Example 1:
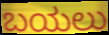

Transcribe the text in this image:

ಬಯಲು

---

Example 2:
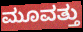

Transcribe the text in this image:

ಮೂವತ್ತು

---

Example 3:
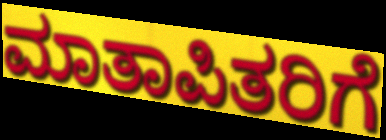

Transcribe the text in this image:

ಮಾತಾಪಿತರಿಗೆ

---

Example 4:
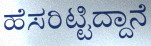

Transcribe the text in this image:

ಹೆಸರಿಟ್ಟಿದ್ದಾನೆ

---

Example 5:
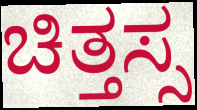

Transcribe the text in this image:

ಚಿತ್ತಸ್ಸ